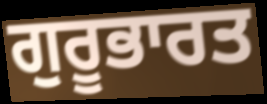
ਗੁਰੂਭਾਰਤ